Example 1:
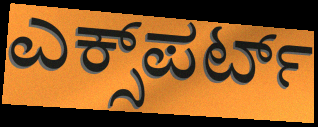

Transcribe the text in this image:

ಎಕ್ಸ್‌ಪರ್ಟ್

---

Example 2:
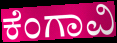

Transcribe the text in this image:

ಕೆಂಗಾವಿ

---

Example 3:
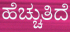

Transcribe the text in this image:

ಹೆಚ್ಚುತಿದೆ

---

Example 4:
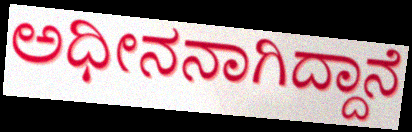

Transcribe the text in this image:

ಅಧೀನನಾಗಿದ್ದಾನೆ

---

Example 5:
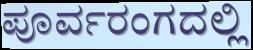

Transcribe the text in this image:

ಪೂರ್ವರಂಗದಲ್ಲಿ